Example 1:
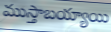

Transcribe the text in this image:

ముస్తాబయ్యాయి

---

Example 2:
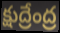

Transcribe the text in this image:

క్షుద్రేంద్ర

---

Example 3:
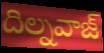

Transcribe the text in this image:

దిల్నవాజ్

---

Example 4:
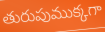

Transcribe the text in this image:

తురుపుముక్కగా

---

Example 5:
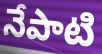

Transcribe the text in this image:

నేపాటి